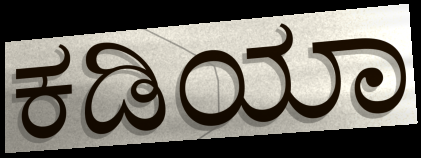
ಕಡಿಯಾ